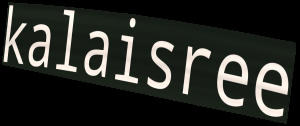
kalaisree